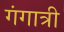
गंगात्री